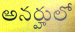
అనర్హులో